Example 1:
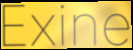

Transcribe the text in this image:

Exine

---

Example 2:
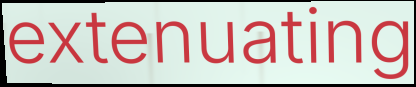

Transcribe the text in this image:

extenuating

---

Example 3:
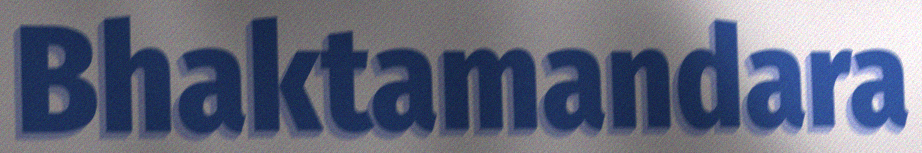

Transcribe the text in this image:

Bhaktamandara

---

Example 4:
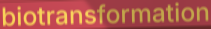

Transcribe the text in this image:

biotransformation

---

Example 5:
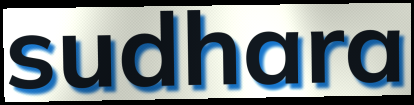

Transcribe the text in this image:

sudhara